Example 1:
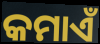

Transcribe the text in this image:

କମାଏଁ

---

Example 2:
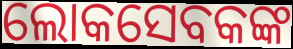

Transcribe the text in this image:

ଲୋକସେବକଙ୍କ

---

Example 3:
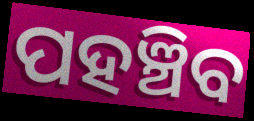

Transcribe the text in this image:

ପହଞ୍ଚିବ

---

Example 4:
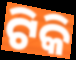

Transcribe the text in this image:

ଟିକି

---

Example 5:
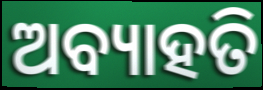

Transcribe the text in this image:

ଅବ୍ୟାହତି